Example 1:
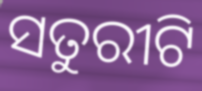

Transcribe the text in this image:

ସତୁରୀଟି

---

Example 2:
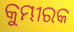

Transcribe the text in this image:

କୁମ୍ଭୀରକ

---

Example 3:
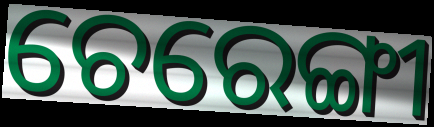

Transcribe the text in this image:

ଚେରେଙ୍ଗୀ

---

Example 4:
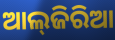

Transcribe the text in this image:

ଆଲ୍‌ଜିରିଆ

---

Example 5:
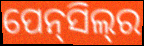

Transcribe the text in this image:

ପେନ୍‍ସିଲ୍‍ର